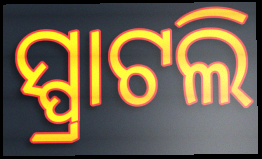
ସ୍ପ୍ରାଟଲି